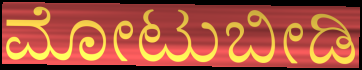
ಮೋಟುಬೀಡಿ